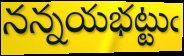
నన్నయభట్టుఁ